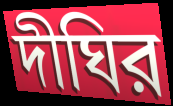
দীঘির